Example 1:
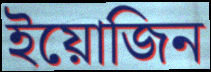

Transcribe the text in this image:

ইয়োজিন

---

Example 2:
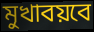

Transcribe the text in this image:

মুখাবয়বে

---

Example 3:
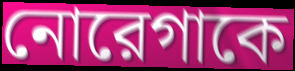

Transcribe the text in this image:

নোরেগাকে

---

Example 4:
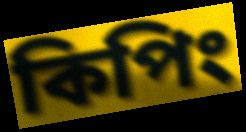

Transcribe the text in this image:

কিপিং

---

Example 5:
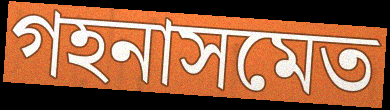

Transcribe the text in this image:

গহনাসমেত